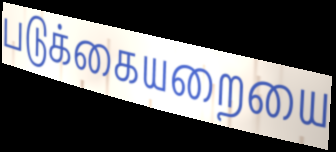
படுக்கையறையை